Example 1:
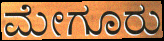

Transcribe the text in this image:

ಮೇಗೂರು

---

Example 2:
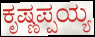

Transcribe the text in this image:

ಕೃಷ್ಣಪ್ಪಯ್ಯ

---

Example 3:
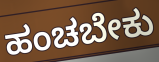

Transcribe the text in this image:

ಹಂಚಬೇಕು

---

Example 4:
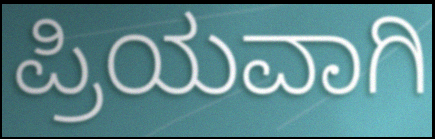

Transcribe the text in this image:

ಪ್ರಿಯವಾಗಿ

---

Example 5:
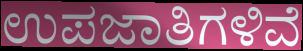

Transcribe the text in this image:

ಉಪಜಾತಿಗಳಿವೆ